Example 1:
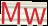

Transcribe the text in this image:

Mw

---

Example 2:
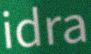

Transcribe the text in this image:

idra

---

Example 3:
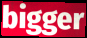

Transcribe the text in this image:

bigger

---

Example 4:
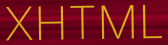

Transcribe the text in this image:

XHTML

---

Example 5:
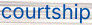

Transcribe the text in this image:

courtship